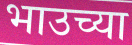
भाउच्या